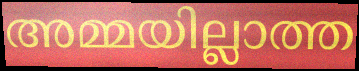
അമ്മയില്ലാത്ത